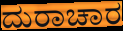
ದುರಾಚಾರ